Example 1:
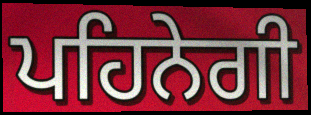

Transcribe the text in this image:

ਪਹਿਨੇਗੀ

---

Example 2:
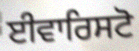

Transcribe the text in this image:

ਈਵਾਰਿਸਟੋ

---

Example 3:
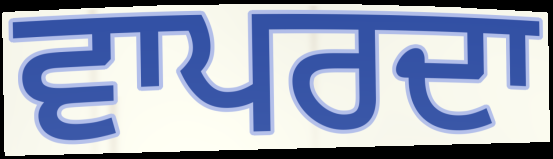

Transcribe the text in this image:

ਵਾਪਰਦਾ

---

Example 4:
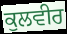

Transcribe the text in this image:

ਕੁਲਵੀਰ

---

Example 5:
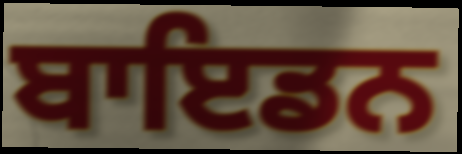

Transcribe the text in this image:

ਬਾਇਡਨ